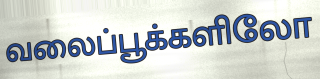
வலைப்பூக்களிலோ